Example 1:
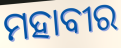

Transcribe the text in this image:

ମହାବୀର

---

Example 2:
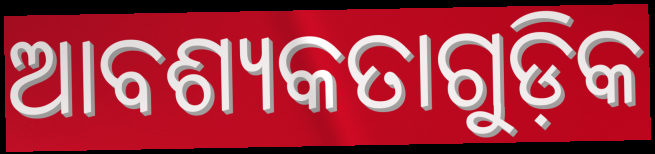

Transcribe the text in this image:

ଆବଶ୍ୟକତାଗୁଡ଼ିକ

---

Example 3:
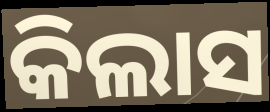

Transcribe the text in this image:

କିଲାସ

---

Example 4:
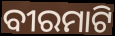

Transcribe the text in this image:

ବୀରମାଟି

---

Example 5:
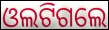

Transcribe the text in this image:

ଓଲଟିଗଲେ